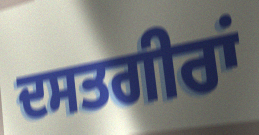
ਦਸਤਗੀਰਾਂ